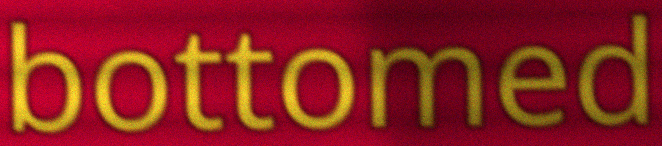
bottomed